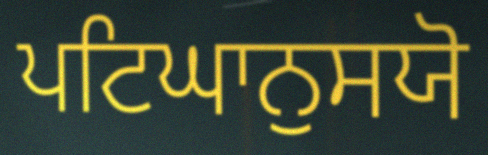
ਪਟਿਘਾਨੁਸਯੋ